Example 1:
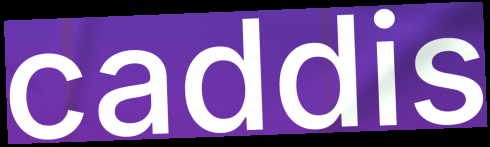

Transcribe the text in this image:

caddis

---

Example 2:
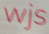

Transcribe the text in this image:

wjs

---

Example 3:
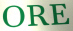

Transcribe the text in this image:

ORE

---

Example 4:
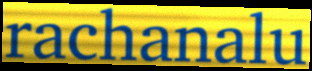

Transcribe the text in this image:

rachanalu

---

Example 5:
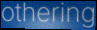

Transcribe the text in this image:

othering